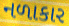
નળાકાર